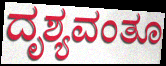
ದೃಶ್ಯವಂತೂ